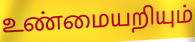
உண்மையறியும்